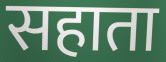
सहाता